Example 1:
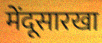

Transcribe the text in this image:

मेंदूसारखा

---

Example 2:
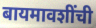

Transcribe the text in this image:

बायमावशींची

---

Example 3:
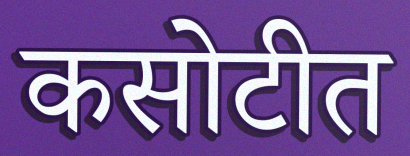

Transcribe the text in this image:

कसोटीत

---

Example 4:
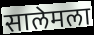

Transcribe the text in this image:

सालेमला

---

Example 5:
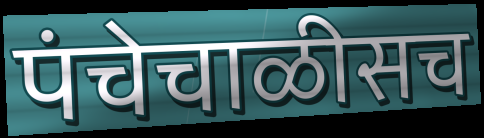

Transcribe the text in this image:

पंचेचाळीसच